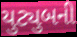
યુટ્યુબની